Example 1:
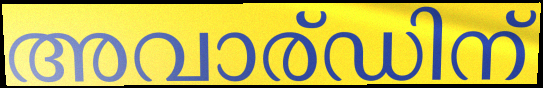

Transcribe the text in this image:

അവാര്ഡിന്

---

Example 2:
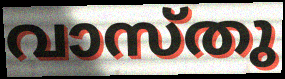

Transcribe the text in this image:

വാസ്തു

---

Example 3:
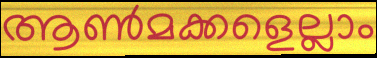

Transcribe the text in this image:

ആൺമക്കളെല്ലാം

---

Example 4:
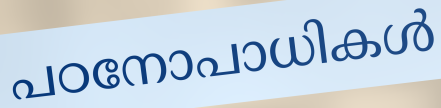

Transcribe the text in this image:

പഠനോപാധികൾ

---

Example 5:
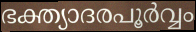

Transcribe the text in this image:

ഭക്ത്യാദരപൂർവ്വം